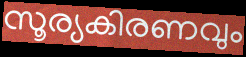
സൂര്യകിരണവും